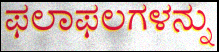
ಫಲಾಫಲಗಳನ್ನು